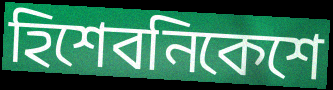
হিশেবনিকেশে